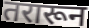
तरारून